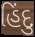
હિંદુ